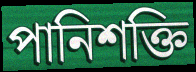
পানিশক্তি